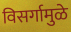
विसर्गामुळे